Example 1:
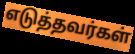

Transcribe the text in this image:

எடுத்தவர்கள்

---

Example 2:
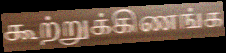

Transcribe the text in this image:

கூற்றுக்கிணங்க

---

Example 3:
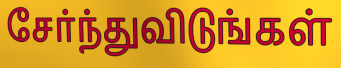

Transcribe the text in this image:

சேர்ந்துவிடுங்கள்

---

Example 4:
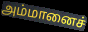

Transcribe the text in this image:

அம்மானைச்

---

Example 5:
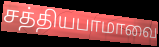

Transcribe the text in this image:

சத்தியபாமாவை